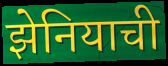
झेनियाची